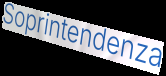
Soprintendenza